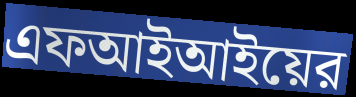
এফআইআইয়ের